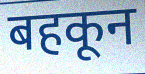
बहकून